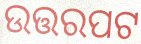
ଉତ୍ତରପଟ